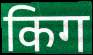
किग